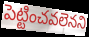
పెట్టించవలెనని